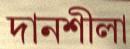
দানশীলা